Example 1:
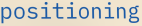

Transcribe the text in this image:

positioning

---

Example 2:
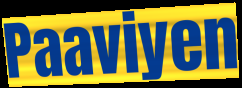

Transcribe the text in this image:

Paaviyen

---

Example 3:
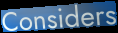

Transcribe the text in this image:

Considers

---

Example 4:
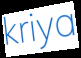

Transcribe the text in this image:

kriya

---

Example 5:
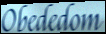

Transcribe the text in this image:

Obededom